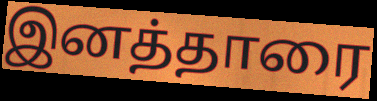
இனத்தாரை